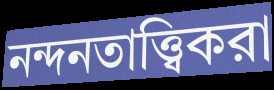
নন্দনতাত্ত্বিকরা